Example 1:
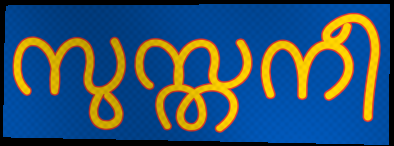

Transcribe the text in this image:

സുസ്തനീ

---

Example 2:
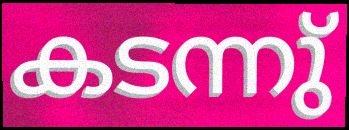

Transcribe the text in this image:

കടന്നു്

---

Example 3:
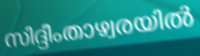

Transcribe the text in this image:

സിദ്ദീംതാഴ്വരയിൽ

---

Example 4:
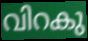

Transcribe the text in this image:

വിറകു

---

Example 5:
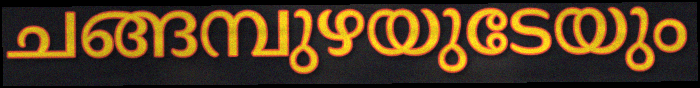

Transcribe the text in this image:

ചങ്ങമ്പുഴയുടേയും